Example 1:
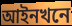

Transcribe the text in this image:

আইনখনে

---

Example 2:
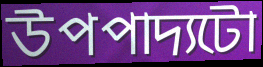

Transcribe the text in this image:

উপপাদ্যটো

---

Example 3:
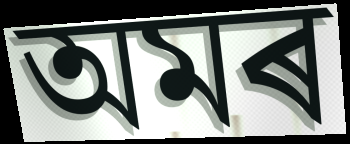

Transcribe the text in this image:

অমৰ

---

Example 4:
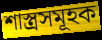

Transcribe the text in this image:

শাস্ত্ৰসমূহক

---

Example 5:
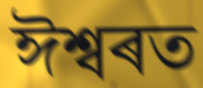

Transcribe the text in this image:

ঈশ্বৰত